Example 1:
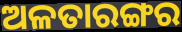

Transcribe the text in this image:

ଅଳତାରଙ୍ଗର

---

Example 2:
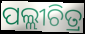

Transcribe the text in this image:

ପଲ୍ଲୀଚିତ୍ର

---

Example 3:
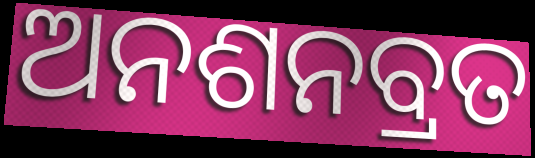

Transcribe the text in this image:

ଅନଶନବ୍ରତ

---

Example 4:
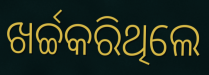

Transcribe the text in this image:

ଖର୍ଚ୍ଚକରିଥିଲେ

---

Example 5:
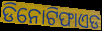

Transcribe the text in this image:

ଡିନୋଟିଫାଏଡ